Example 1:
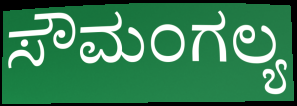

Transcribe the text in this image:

ಸೌಮಂಗಲ್ಯ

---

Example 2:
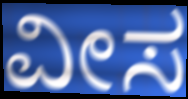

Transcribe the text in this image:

ವೀಸ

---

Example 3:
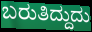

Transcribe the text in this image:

ಬರುತಿದ್ದುದು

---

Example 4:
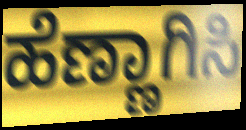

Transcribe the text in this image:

ಹೆಣ್ಣಾಗಿಸಿ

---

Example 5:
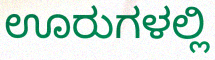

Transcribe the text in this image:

ಊರುಗಳಲ್ಲಿ